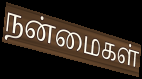
நன்மைகள்